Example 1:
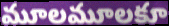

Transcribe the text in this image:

మూలమూలకూ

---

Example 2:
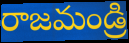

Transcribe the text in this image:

రాజమండ్రి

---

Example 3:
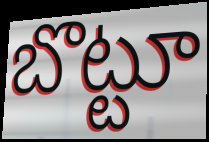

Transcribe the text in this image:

బొట్టూ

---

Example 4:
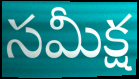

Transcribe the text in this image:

సమీక్ష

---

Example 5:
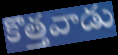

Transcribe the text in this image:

కొత్తవాడు